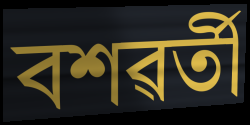
বশৱৰ্তী